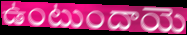
ఉంటుందాయె